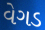
વેગડ